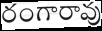
రంగారావు